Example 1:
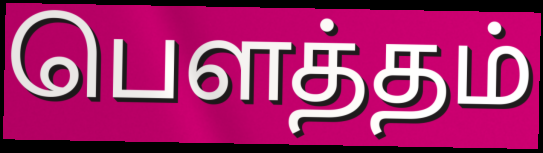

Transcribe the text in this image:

பௌத்தம்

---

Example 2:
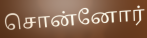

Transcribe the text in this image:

சொன்னோர்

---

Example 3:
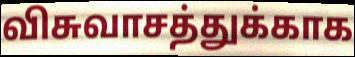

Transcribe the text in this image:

விசுவாசத்துக்காக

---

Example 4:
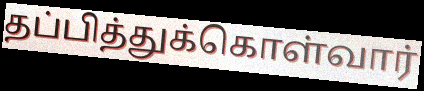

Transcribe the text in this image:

தப்பித்துக்கொள்வார்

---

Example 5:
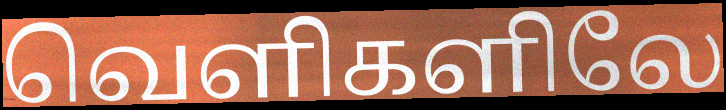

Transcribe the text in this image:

வெளிகளிலே